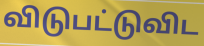
விடுபட்டுவிட